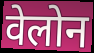
वेलोन